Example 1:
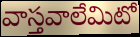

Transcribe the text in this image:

వాస్తవాలేమిటో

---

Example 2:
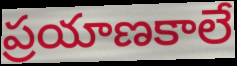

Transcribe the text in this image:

ప్రయాణకాలే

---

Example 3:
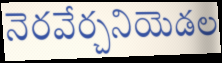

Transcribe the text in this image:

నెరవేర్చనియెడల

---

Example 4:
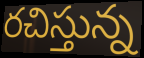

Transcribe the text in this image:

రచిస్తున్న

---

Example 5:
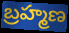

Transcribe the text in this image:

బ్రహ్మణ